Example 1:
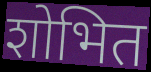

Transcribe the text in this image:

शोभित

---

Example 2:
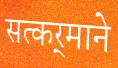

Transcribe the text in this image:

सत्कर्माने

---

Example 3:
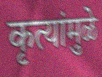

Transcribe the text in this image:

कृत्यांमुळे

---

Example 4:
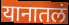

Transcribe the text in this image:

यानातलं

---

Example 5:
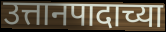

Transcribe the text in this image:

उत्तानपादाच्या